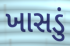
ખાસડું